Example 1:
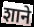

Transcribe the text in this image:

शाने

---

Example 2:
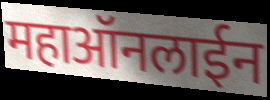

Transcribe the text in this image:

महाऑनलाईन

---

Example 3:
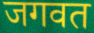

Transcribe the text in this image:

जगवत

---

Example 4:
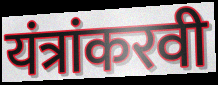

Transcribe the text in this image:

यंत्रांकरवी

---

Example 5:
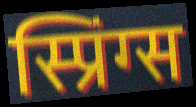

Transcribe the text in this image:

स्प्रिंग्स